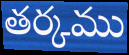
తర్కము